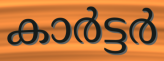
കാർട്ടർ